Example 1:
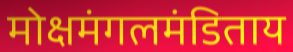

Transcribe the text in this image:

मोक्षमंगलमंडिताय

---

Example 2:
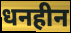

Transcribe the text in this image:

धनहीन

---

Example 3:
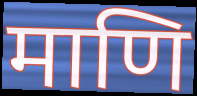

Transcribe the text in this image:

माणि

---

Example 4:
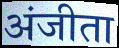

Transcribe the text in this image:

अंजीता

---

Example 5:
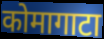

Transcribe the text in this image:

कोमागाटा